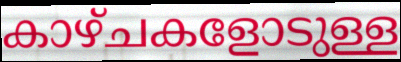
കാഴ്ചകളോടുള്ള